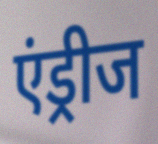
एंड्रीज